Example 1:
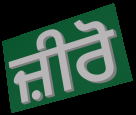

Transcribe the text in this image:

ਜ਼ੀਰੋ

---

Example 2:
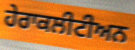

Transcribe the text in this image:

ਹੇਰਾਕਲੀਟੀਅਨ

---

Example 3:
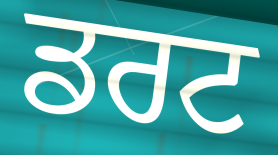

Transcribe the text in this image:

ਡਰਟ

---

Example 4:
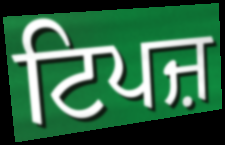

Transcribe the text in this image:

ਟਿਪਜ਼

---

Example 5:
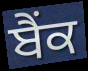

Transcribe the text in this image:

ਬੈਂਕ